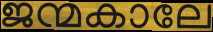
ജന്മകാലേ